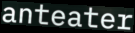
anteater